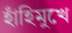
হাঁহিমুখে